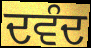
ਦਵੰਦ